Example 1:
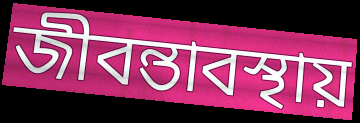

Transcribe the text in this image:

জীবন্তাবস্থায়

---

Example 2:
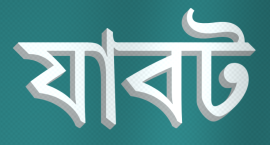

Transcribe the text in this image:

যাবট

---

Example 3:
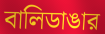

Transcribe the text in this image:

বালিডাঙার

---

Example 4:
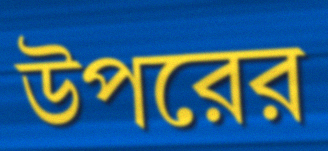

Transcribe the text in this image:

উপরের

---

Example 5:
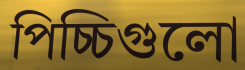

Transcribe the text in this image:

পিচ্চিগুলো